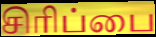
சிரிப்பை